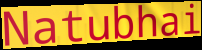
Natubhai